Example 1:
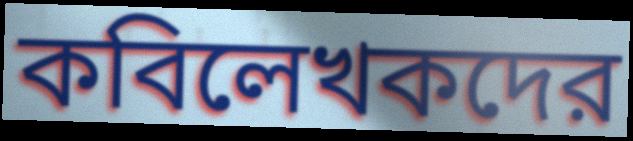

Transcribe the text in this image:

কবিলেখকদের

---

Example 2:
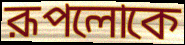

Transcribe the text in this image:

রূপলোকে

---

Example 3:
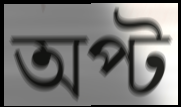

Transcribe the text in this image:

অপ্ট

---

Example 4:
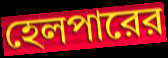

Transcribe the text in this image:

হেলপারের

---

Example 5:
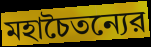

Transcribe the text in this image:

মহাচৈতন্যের